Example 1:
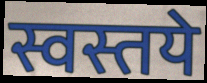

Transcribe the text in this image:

स्वस्तये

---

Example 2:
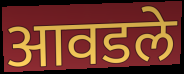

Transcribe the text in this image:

आवडले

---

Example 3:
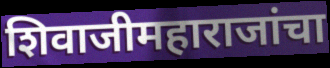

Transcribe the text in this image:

शिवाजीमहाराजांचा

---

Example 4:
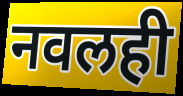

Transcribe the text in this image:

नवलही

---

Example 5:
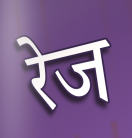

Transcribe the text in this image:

रेज